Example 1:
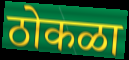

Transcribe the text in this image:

ठोकळा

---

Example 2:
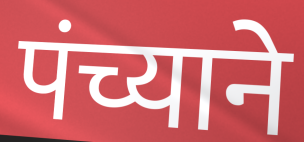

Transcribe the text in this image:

पंच्याने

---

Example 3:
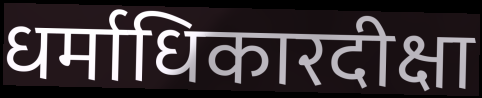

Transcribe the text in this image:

धर्माधिकारदीक्षा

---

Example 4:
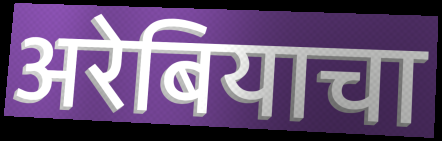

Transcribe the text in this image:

अरेबियाचा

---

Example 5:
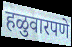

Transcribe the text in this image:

हळुवारपणे